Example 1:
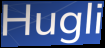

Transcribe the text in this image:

Hugli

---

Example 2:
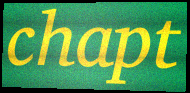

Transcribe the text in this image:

chapt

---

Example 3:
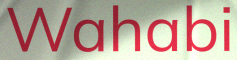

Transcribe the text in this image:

Wahabi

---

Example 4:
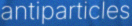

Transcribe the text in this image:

antiparticles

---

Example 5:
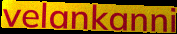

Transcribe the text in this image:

velankanni